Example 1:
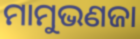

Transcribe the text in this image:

ମାମୁଭଣଜା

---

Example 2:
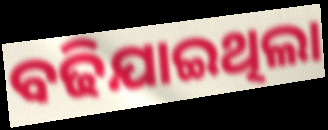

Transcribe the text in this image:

ବଢିଯାଇଥିଲା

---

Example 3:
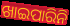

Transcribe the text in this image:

ଖାଇପାରିନି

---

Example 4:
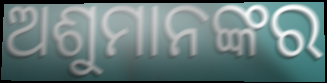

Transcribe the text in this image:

ଅଶୁମାନଙ୍କର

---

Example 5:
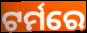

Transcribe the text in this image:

ଟର୍ମରେ